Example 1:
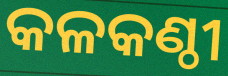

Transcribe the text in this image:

କଳକଣ୍ଠୀ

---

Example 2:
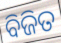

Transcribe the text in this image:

ବିଜିତ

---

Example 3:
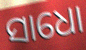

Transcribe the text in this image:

ସାଧୋ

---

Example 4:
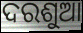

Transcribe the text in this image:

ଦରଶୁଆ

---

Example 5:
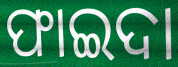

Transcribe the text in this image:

ଫାଇଦା